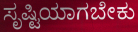
ಸೃಷ್ಟಿಯಾಗಬೇಕು